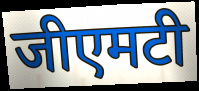
जीएमटी